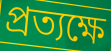
প্রত্যক্ষে